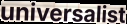
universalist